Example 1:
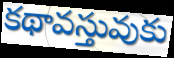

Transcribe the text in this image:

కథావస్తువుకు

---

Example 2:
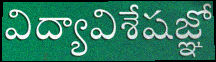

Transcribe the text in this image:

విద్యావిశేషజ్ఞో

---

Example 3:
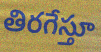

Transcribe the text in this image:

తిరగేస్తూ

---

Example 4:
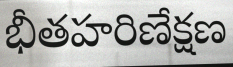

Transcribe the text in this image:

భీతహరిణేక్షణ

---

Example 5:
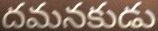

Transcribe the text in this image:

దమనకుడు